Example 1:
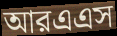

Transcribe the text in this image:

আরএএস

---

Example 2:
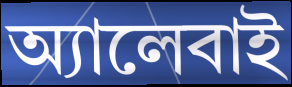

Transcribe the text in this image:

অ্যালেবাই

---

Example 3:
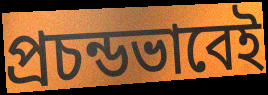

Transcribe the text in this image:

প্রচন্ডভাবেই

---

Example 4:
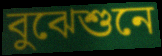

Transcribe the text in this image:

বুঝেশুনে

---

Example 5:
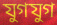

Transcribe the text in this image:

যুগযুগ